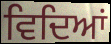
ਵਿਦਿਆਂ